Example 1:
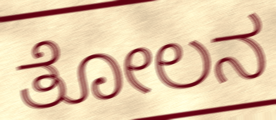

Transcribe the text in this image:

ತೋಲನ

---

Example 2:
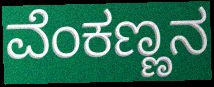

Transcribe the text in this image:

ವೆಂಕಣ್ಣನ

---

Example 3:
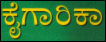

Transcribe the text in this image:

ಕೈಗಾರಿಕಾ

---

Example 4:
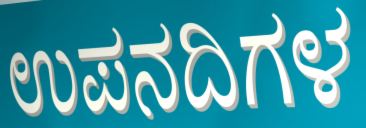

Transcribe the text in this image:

ಉಪನದಿಗಳ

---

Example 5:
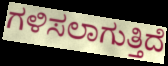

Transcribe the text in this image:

ಗಳಿಸಲಾಗುತ್ತಿದೆ